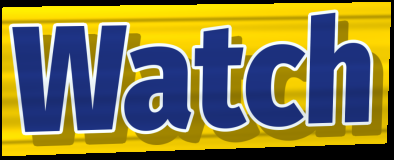
Watch